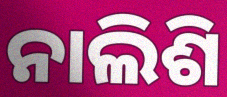
ନାଲିଶି